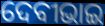
ଦେବୀଭାଇ